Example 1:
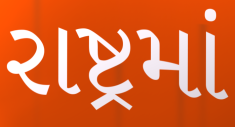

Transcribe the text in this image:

રાષ્ટ્રમાં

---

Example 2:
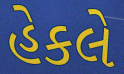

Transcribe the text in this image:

હેકલે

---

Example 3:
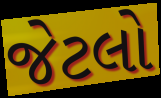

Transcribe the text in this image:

જેટલો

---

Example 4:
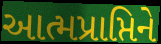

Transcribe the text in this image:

આત્મપ્રાપ્તિને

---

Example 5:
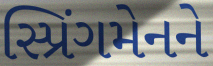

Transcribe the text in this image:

સ્પ્રિંગમેનને